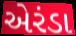
એરંડા